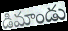
డిమాండు